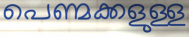
പെണ്മക്കളുള്ള